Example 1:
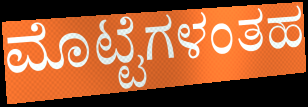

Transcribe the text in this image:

ಮೊಟ್ಟೆಗಳಂತಹ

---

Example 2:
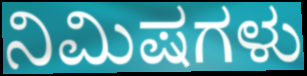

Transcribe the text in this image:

ನಿಮಿಷಗಳು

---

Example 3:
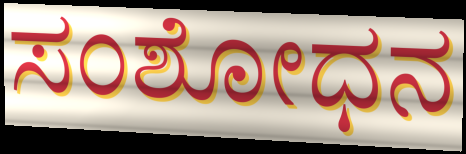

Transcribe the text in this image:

ಸಂಶೋಧನ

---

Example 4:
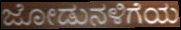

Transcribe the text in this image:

ಜೋಡುನಳಿಗೆಯ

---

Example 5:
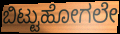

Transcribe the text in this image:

ಬಿಟ್ಟುಹೋಗಲೇ